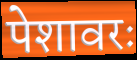
पेशावरः